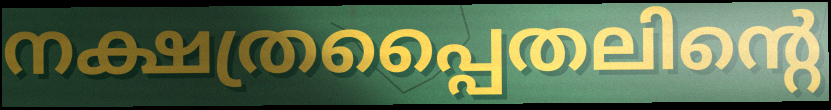
നക്ഷത്രപ്പൈതലിന്റെ